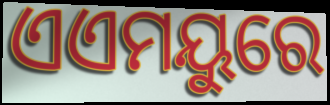
ଏଏମୟୁରେ